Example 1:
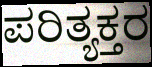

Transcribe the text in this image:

ಪರಿತ್ಯಕ್ತರ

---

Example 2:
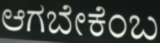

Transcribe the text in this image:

ಆಗಬೇಕೆಂಬ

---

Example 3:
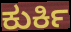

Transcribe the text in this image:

ಕುರ್ಕಿ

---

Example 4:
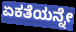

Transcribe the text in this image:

ಏಕತೆಯನ್ನೇ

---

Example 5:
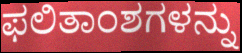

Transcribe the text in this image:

ಫಲಿತಾಂಶಗಳನ್ನು